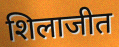
शिलाजीत